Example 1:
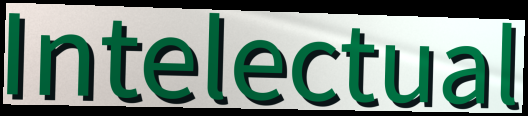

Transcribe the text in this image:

Intelectual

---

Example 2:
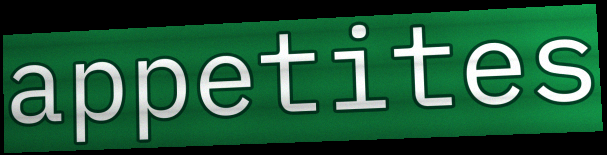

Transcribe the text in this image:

appetites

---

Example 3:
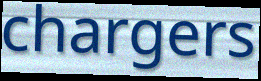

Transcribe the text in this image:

chargers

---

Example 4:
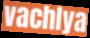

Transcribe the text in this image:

vachlya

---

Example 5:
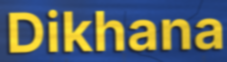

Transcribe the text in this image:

Dikhana